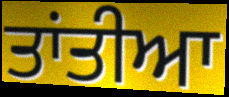
ਤਾਂਤੀਆ